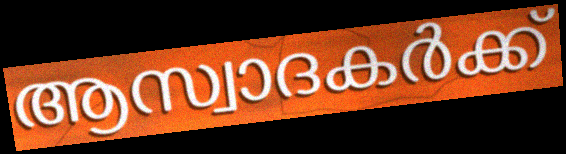
ആസ്വാദകർക്ക്